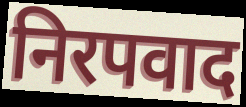
निरपवाद